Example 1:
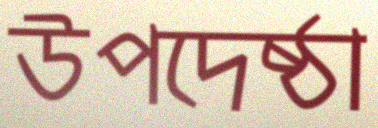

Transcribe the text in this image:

উপদেষ্ঠা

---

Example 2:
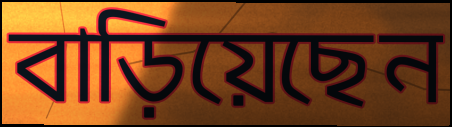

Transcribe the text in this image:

বাড়িয়েছেন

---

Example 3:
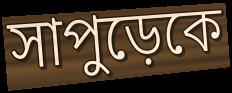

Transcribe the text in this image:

সাপুড়েকে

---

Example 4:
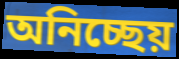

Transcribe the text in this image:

অনিচ্ছেয়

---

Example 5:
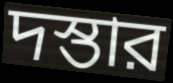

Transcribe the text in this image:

দস্তার